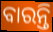
ବାରନ୍ତି